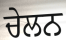
ਚੇਲਨ